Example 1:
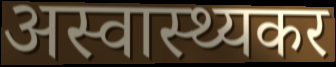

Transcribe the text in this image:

अस्वास्थ्यकर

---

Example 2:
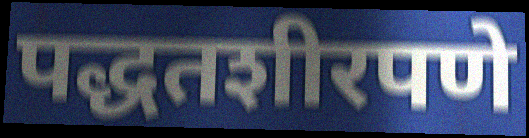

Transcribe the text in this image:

पद्धतशीरपणे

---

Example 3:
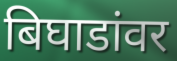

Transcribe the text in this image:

बिघाडांवर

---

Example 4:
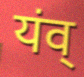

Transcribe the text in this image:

यंव्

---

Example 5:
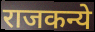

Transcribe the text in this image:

राजकन्ये